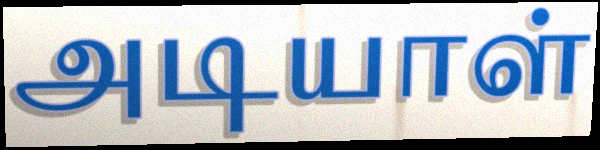
அடியாள்